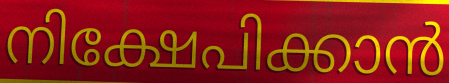
നിക്ഷേപിക്കാൻ